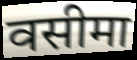
वसीमा